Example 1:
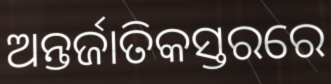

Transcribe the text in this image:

ଅନ୍ତର୍ଜାତିକସ୍ତରରେ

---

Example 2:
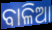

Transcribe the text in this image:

ବାଳିଆ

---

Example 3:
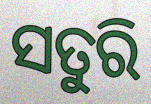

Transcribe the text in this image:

ସତୁରି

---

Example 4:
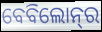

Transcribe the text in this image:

ବେବିଲୋନ୍‌ର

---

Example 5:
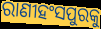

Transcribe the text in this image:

ରାଣୀହଂସପୁରକୁ